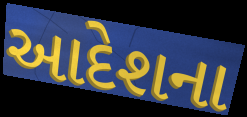
આદેશના